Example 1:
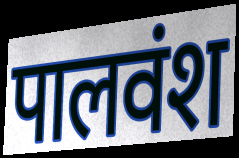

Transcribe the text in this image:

पालवंश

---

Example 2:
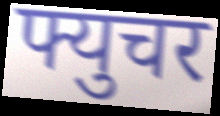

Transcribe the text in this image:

फ्युचर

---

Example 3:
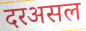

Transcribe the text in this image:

दरअसल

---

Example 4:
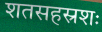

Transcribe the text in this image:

शतसहस्रशः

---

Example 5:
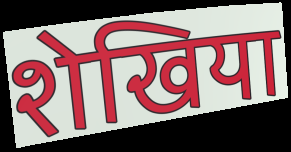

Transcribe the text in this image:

शेखिया